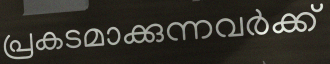
പ്രകടമാക്കുന്നവർക്ക്